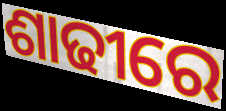
ଶାଢୀରେ